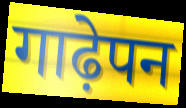
गाढ़ेपन